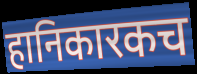
हानिकारकच